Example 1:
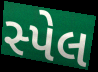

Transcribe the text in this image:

સ્પેલ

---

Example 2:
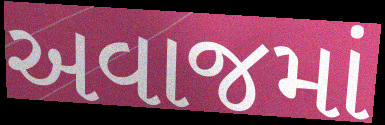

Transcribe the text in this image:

અવાજમાં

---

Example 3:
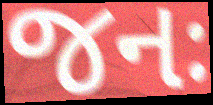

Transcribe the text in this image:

જનઃ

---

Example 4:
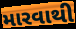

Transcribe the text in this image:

મારવાથી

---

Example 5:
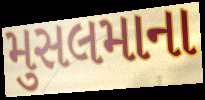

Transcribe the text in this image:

મુસલમાના